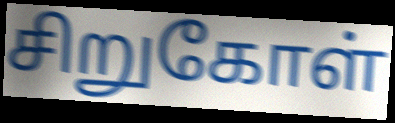
சிறுகோள்